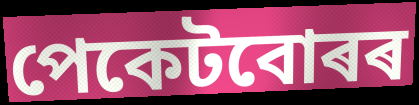
পেকেটবোৰৰ